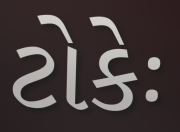
ટોકેઃ